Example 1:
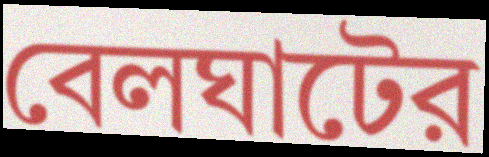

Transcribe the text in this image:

বেলঘাটের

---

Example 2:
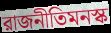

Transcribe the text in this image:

রাজনীতিমনস্ক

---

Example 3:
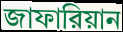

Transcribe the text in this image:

জাফারিয়ান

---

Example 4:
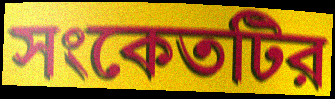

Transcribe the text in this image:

সংকেতটির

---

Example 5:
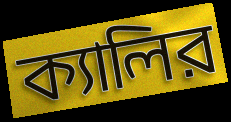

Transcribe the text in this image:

ক্যালির